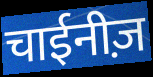
चाईनीज़